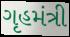
ગૃહમંત્રી